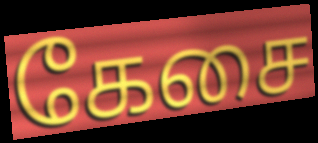
கேசை